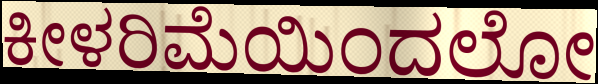
ಕೀಳರಿಮೆಯಿಂದಲೋ